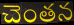
చెంతన